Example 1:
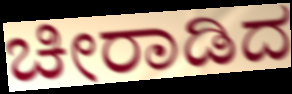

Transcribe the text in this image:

ಚೀರಾಡಿದ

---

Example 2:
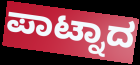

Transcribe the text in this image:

ಪಾಟ್ನಾದ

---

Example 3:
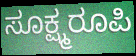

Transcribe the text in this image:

ಸೂಕ್ಷ್ಮರೂಪಿ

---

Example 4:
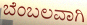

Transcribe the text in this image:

ಬೆಂಬಲವಾಗಿ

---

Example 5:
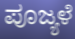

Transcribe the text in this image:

ಪೂಜ್ಯಳೆ